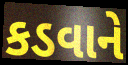
કડવાને